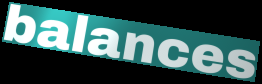
balances